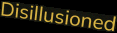
Disillusioned